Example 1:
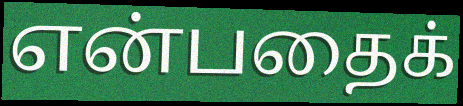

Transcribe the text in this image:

என்பதைக்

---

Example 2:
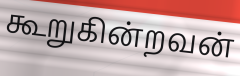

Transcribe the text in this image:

கூறுகின்றவன்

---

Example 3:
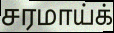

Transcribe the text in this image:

சரமாய்க்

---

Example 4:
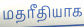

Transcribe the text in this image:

மதரீதியாக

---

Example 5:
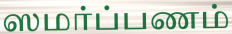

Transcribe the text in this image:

ஸமர்ப்பணம்